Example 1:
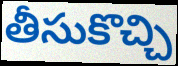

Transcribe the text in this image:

తీసుకొచ్చి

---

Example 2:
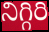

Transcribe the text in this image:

నిగ్గిరి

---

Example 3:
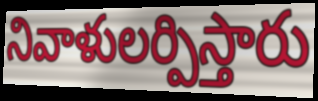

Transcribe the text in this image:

నివాళులర్పిస్తారు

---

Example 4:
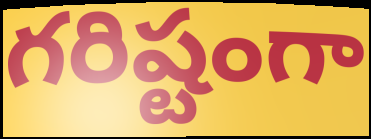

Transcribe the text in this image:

గరిష్టంగా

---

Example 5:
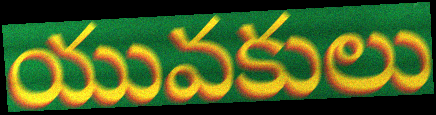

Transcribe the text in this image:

యువకులు